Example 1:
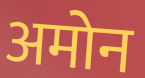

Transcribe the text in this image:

अमोन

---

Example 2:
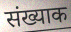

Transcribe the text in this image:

संख्याक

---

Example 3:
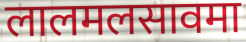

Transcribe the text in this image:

लालमलसावमा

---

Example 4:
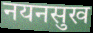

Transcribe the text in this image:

नयनसुख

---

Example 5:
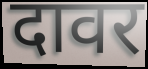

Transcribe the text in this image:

दावर